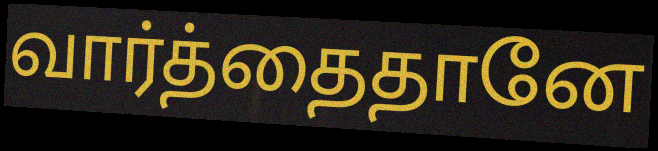
வார்த்தைதானே